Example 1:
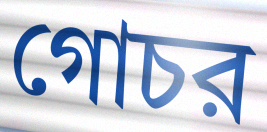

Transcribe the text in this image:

গোচর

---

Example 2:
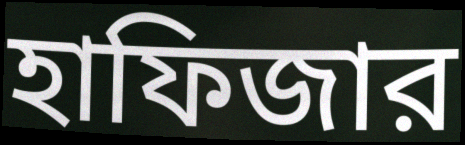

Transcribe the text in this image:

হাফিজার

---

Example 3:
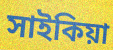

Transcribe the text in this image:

সাইকিয়া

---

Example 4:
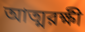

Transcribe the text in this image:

আত্মরক্ষী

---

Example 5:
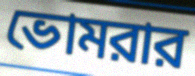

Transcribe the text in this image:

ভোমরার